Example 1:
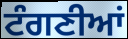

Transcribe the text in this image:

ਟੰਗਣੀਆਂ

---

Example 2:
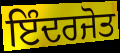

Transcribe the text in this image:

ਇੰਦਰਜੋਤ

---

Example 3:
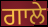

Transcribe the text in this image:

ਗਾਲੇ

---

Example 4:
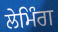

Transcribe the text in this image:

ਲੇਮਿੰਗ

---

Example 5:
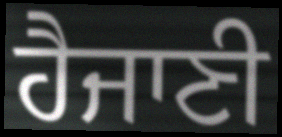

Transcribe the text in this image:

ਹੈਜਾਣੀ